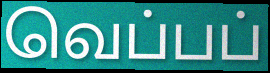
வெப்பப்